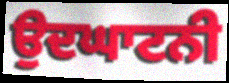
ਉਦਘਾਟਨੀ